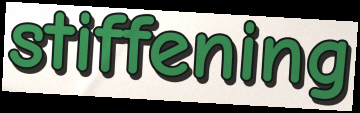
stiffening